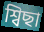
শ্বিছা